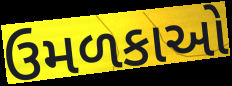
ઉમળકાઓ